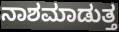
ನಾಶಮಾಡುತ್ತ